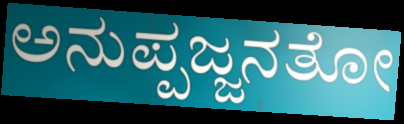
ಅನುಪ್ಪಜ್ಜನತೋ